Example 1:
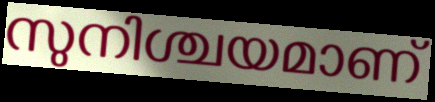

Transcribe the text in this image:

സുനിശ്ചയമാണ്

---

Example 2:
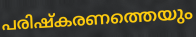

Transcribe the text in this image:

പരിഷ്കരണത്തെയും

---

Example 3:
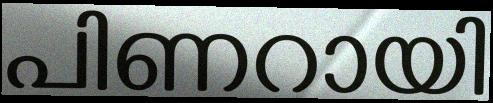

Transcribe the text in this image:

പിണറായി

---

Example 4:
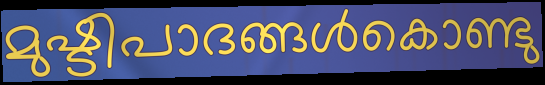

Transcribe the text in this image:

മുഷ്ടിപാദങ്ങൾകൊണ്ടു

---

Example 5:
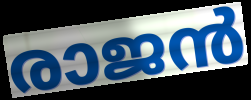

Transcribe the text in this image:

രാജൻ